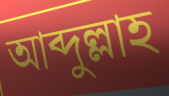
আব্দুল্লাহ